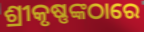
ଶ୍ରୀକୃଷ୍ଣଙ୍କଠାରେ